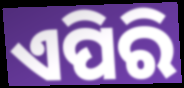
ଏପିରି